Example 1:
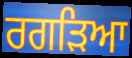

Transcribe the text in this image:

ਰਗੜਿਆ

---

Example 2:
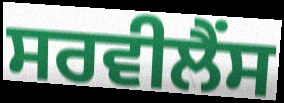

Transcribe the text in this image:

ਸਰਵੀਲੈਂਸ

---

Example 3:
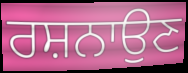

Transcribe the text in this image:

ਰਸ਼ਨਾਉਣ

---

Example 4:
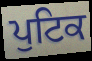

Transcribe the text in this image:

ਪੁਟਿਕ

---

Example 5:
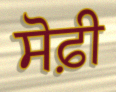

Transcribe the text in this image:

ਸੋਫ਼ੀ